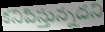
కనిపిస్తున్నదని